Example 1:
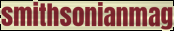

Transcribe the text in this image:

smithsonianmag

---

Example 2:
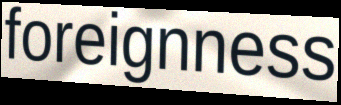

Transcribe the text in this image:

foreignness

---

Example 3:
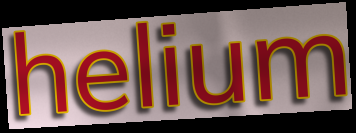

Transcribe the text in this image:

helium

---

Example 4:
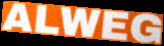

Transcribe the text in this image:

ALWEG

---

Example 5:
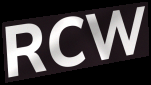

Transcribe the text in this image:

RCW